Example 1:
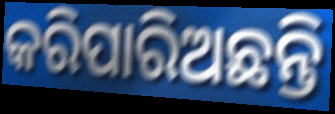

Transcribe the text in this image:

କରିପାରିଅଛନ୍ତି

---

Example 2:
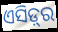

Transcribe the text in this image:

ଏସିଡ଼୍‌ର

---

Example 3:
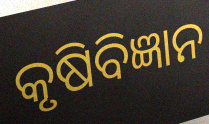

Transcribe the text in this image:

କୃଷିବିଜ୍ଞାନ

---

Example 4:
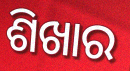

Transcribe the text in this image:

ଶିଖାର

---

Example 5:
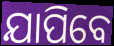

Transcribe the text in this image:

ଯାପିବେ